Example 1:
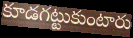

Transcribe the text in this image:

కూడగట్టుకుంటారు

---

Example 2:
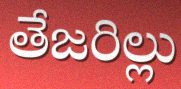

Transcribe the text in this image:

తేజరిల్లు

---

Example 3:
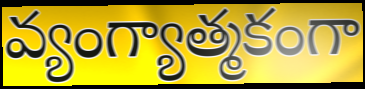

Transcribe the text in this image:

వ్యంగ్యాత్మకంగా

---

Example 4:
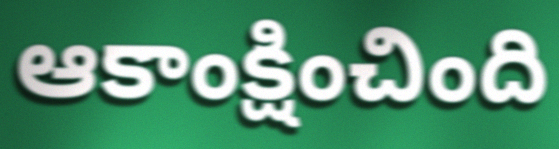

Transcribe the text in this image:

ఆకాంక్షించింది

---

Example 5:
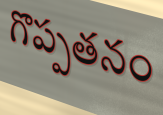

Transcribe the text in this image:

గొప్పతనం